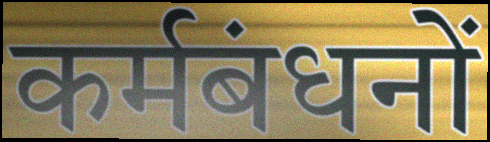
कर्मबंधनों